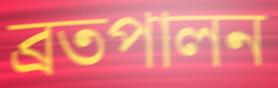
ব্রতপালন